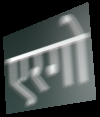
एरगो